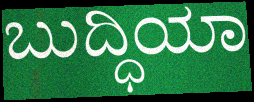
ಬುದ್ಧಿಯಾ